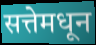
सत्तेमधून